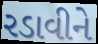
રડાવીને